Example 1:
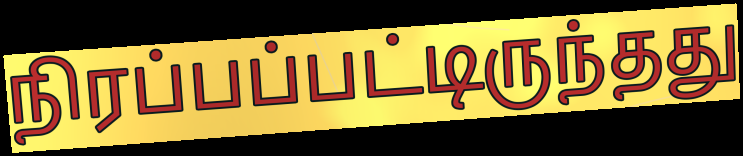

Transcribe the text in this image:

நிரப்பப்பட்டிருந்தது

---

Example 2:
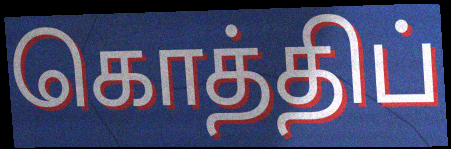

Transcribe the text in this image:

கொத்திப்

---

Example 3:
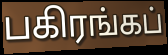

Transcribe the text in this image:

பகிரங்கப்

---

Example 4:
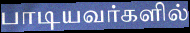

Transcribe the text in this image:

பாடியவர்களில்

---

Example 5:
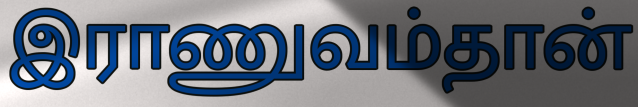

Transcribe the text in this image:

இராணுவம்தான்